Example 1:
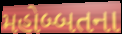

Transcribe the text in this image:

મહોબ્બતના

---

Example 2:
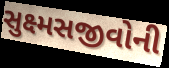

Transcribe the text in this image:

સુક્ષ્મસજીવોની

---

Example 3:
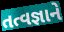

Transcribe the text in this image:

તત્વજ્ઞાને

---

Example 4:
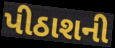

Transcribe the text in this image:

પીઠાશની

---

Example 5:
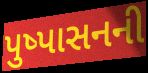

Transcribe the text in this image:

પુષ્પાસનની